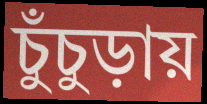
চুঁচুড়ায়